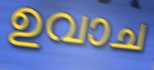
ഉവാച